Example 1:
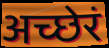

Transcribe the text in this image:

अच्छेरं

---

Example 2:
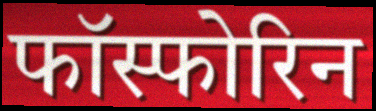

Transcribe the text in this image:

फॉस्फोरिन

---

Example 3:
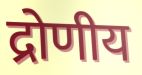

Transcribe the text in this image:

द्रोणीय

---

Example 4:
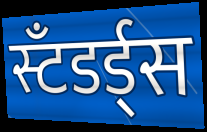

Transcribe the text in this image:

स्टँडर्ड्स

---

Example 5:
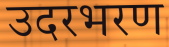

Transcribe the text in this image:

उदरभरण